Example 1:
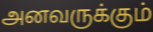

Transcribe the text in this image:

அனவருக்கும்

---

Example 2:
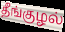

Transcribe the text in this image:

தீங்குழல்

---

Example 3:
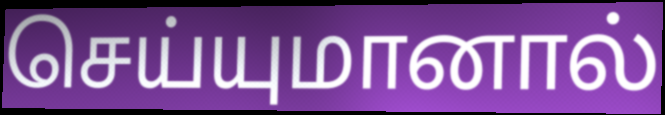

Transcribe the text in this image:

செய்யுமானால்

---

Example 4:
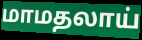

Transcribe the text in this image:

மாமதலாய்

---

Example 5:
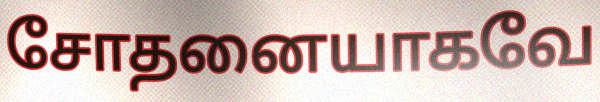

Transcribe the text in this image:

சோதனையாகவே